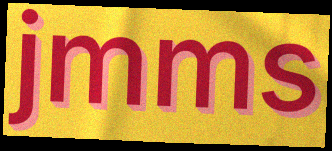
jmms